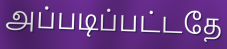
அப்படிப்பட்டதே